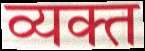
व्यक्त